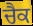
ਚੈਕ